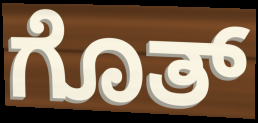
ಗೊತ್